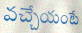
వచ్చేయంటే